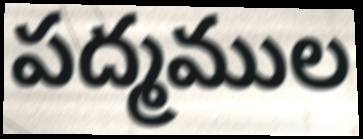
పద్మముల